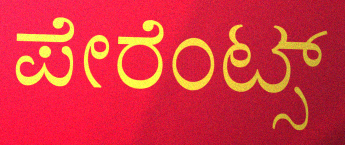
ಪೇರೆಂಟ್ಸ್